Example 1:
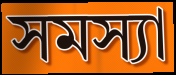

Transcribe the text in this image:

সমস্যা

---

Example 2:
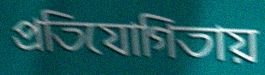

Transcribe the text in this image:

প্রতিযোগিতায়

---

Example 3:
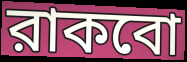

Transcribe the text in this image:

রাকবো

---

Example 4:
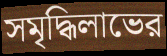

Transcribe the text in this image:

সমৃদ্ধিলাভের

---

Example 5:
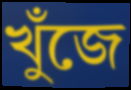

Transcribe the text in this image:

খুঁজে